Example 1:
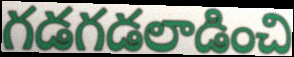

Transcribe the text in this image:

గడగడలాడించి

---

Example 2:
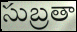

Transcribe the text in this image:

సుబ్రతా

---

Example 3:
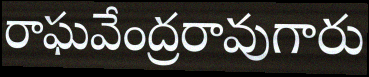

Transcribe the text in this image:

రాఘవేంద్రరావుగారు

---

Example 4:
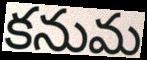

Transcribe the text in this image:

కనుమ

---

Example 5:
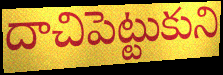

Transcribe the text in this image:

దాచిపెట్టుకుని